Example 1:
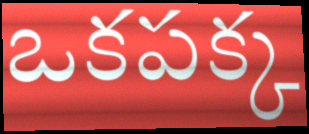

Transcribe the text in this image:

ఒకపక్క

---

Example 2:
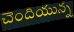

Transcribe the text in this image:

చెందియున్న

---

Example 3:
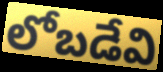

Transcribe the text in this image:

లోబడేవి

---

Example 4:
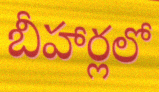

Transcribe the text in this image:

బీహార్లలో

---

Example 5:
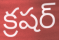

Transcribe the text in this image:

క్రషర్